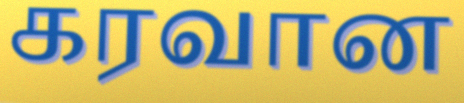
கரவான